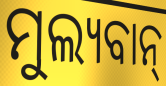
ମୁଲ୍ୟବାନ୍